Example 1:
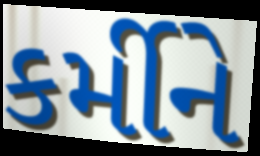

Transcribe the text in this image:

કર્મીને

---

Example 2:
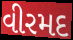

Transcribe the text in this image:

વીરમદ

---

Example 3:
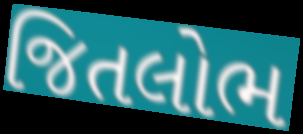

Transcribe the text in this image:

જિતલોભ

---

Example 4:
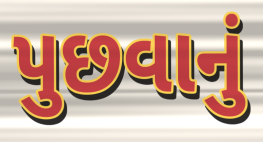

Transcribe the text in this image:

પુછવાનું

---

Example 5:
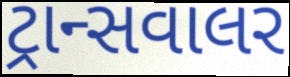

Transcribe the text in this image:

ટ્રાન્સવાલર